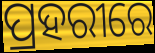
ପ୍ରହରୀରେ